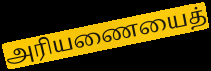
அரியணையைத்